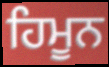
ਹਿਮੂਨ